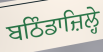
ਬਠਿੰਡਾਜ਼ਿਲ੍ਹੇ